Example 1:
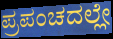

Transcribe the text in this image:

ಪ್ರಪಂಚದಲ್ಲೇ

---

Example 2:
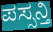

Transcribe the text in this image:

ಪಸ್ಸನ್ತಿ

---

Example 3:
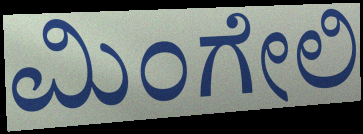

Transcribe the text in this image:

ಮಿಂಗೇಲಿ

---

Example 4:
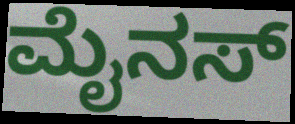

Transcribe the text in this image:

ಮೈನಸ್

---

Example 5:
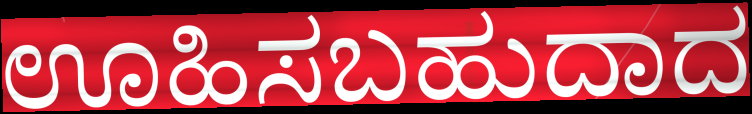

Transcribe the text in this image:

ಊಹಿಸಬಹುದಾದ